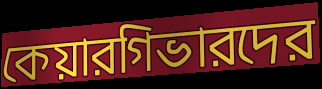
কেয়ারগিভারদের